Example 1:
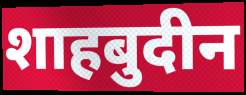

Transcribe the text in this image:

शाहबुदीन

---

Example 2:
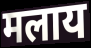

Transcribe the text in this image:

मलाय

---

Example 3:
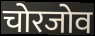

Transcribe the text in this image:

चोरजोव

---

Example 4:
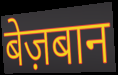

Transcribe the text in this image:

बेज़बान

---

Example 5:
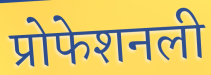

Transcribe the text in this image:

प्रोफेशनली